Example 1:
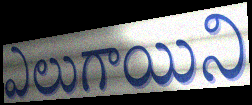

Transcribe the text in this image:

ఎలుగాయిని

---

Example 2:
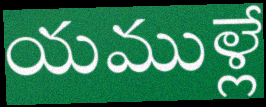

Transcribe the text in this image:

యముళ్లే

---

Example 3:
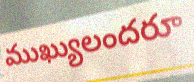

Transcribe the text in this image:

ముఖ్యులందరూ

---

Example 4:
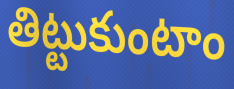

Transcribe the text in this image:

తిట్టుకుంటాం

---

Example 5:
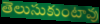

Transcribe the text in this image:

తెలుసుకుంటావు